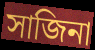
সাজিনা